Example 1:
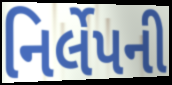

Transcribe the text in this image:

નિર્લેપની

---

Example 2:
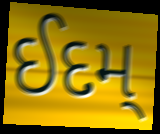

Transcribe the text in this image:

ઈદમ્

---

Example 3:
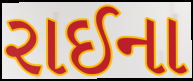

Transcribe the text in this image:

રાઈના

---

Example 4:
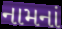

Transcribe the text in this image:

નામનાં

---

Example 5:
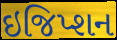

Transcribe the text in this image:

ઇજિપ્શન